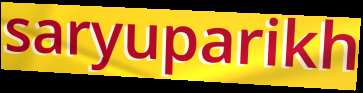
saryuparikh